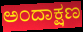
ಅಂದಾಕ್ಷಣ